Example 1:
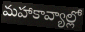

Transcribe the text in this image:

మహాకావ్యాల్లో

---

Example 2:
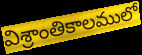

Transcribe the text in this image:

విశ్రాంతికాలములో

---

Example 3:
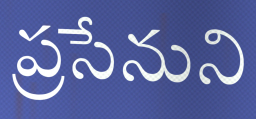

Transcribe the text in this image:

ప్రసేనుని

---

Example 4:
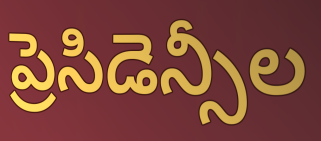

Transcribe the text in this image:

ప్రెసిడెన్సీల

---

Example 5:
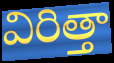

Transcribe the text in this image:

విరిత్తా